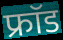
फ्रॉड